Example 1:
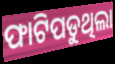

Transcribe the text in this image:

ଫାଟିପଡୁଥିଲା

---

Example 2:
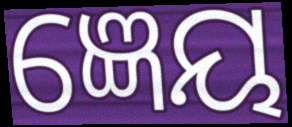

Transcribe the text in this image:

ଜ୍ଞେୟ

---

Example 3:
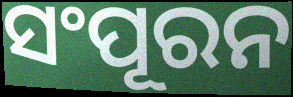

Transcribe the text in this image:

ସଂପୂରନ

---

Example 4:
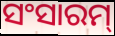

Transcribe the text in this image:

ସଂସାରମ୍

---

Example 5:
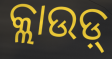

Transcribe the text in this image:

କ୍ଲାଉଡ଼୍